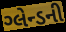
ગ્લેન્ડની